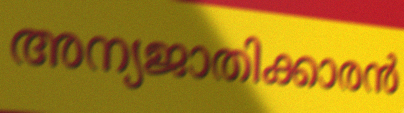
അന്യജാതിക്കാരൻ